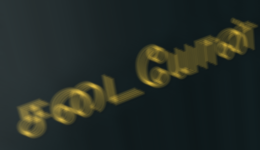
சடையோன்